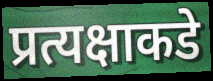
प्रत्यक्षाकडे